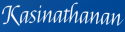
Kasinathanan